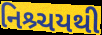
નિશ્ર્ચયથી